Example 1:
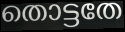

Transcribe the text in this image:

തൊട്ടതേ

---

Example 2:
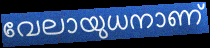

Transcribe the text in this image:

വേലായുധനാണ്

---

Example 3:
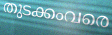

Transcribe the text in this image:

തുടക്കംവരെ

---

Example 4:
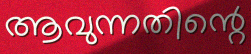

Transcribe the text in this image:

ആവുന്നതിന്റെ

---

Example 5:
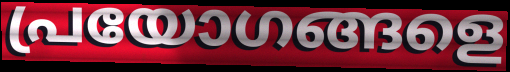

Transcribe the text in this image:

പ്രയോഗങ്ങളെ